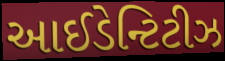
આઈડેન્ટિટીઝ